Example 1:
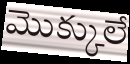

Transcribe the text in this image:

మొక్కులే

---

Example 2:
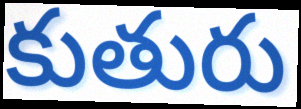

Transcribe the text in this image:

కుతురు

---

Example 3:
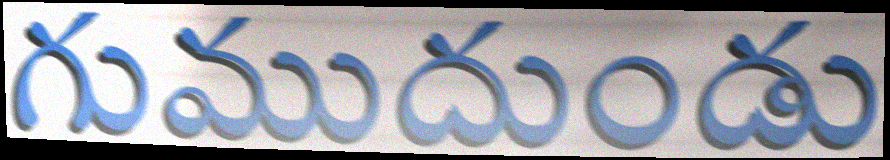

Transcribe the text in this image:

గుముదుండు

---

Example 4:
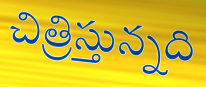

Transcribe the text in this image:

చిత్రిస్తున్నది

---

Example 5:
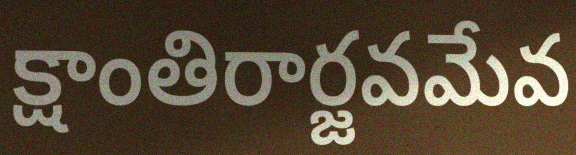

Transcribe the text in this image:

క్షాంతిరార్జవమేవ